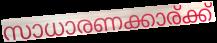
സാധാരണക്കാര്ക്ക്